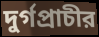
দুর্গপ্রাচীর